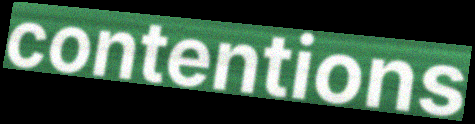
contentions